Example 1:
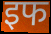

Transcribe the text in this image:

इफ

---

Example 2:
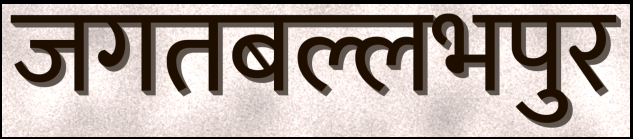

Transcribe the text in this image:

जगतबल्लभपुर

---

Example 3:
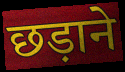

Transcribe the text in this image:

छड़ाने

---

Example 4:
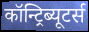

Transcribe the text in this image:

कॉन्ट्रिब्यूटर्स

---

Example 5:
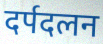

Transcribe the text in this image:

दर्पदलन